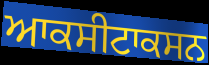
ਆਕਸੀਟਾਕਸਨ